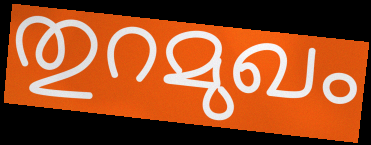
തുറമുഖം